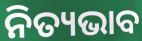
ନିତ୍ୟଭାବ